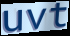
uvt